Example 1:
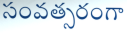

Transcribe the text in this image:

సంవత్సరంగా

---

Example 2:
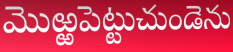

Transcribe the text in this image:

మొఱ్ఱపెట్టుచుండెను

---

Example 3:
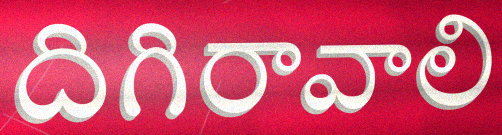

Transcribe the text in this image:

దిగిరావాలి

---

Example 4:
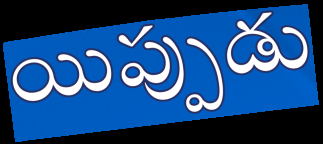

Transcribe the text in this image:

యిప్పుడు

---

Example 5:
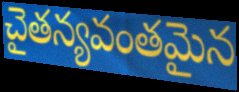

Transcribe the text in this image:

చైతన్యవంతమైన